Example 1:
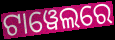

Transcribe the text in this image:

ଟାୱେଲରେ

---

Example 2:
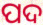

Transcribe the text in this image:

ପଦ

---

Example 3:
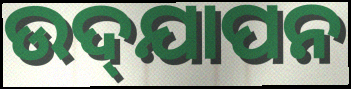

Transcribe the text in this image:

ଉଦ୍‌ଯାପନ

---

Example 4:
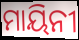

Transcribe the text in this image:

ମାୟିନୀ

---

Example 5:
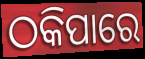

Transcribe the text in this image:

ଠକିପାରେ